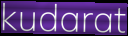
kudarat